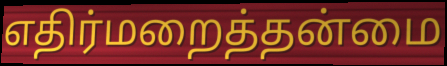
எதிர்மறைத்தன்மை